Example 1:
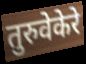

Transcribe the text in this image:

तुरुवेकेरे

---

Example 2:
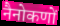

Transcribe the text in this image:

नैनोकणों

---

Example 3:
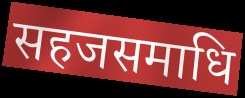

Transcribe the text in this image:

सहजसमाधि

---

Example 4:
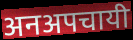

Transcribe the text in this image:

अनअपचायी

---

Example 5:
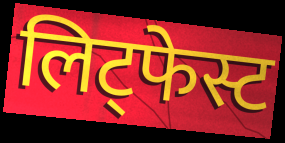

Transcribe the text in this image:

लिट्फेस्ट